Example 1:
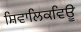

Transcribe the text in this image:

ਸ਼ਿਵਾਲਿਕਵਿਊ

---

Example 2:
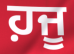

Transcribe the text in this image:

ਹ਼ਜੂ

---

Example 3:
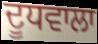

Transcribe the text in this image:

ਦੂਧਵਾਲਾ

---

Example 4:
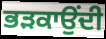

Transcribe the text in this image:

ਭੜਕਾਉਂਦੀ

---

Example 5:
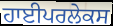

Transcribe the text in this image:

ਹਾਈਪਰਲੇਕਸ